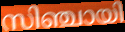
സിഞ്ചായി